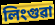
লিংগুৱা